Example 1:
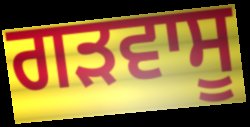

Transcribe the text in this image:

ਗੜਵਾਸੂ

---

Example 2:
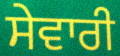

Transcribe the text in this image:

ਸੇਵਾਰੀ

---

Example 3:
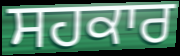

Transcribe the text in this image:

ਸਹਕਾਰ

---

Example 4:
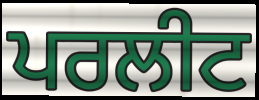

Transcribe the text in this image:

ਪਰਲੀਟ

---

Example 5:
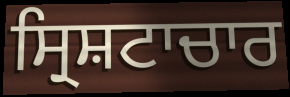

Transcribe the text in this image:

ਸ੍ਰਿਸ਼ਟਾਚਾਰ